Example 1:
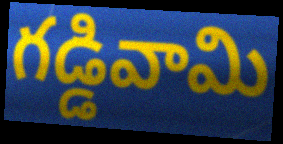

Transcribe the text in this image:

గడ్డివామి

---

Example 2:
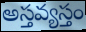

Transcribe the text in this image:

అస్తవ్యస్తం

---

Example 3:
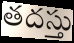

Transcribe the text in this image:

తదస్తు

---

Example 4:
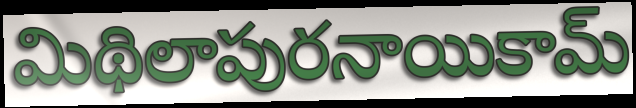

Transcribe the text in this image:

మిథిలాపురనాయికామ్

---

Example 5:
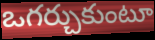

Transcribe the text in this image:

ఒగర్చుకుంటూ